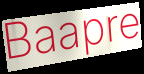
Baapre